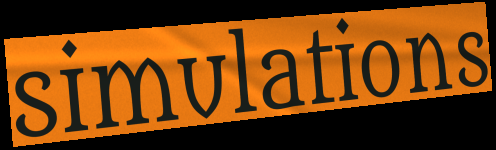
simulations